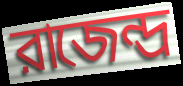
রাজেন্দ্র